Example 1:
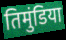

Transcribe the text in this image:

तिमुंडिया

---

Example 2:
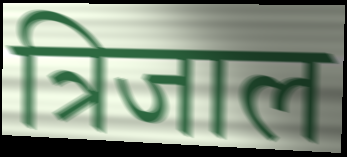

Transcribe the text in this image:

त्रिजाल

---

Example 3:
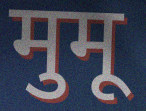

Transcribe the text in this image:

मुमू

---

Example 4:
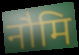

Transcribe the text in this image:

नौमि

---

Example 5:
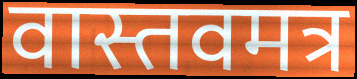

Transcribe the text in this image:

वास्तवमत्र